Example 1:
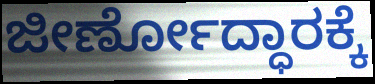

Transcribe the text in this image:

ಜೀರ್ಣೋದ್ಧಾರಕ್ಕೆ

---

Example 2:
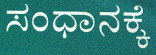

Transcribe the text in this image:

ಸಂಧಾನಕ್ಕೆ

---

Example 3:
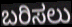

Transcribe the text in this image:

ಬರಿಸಲು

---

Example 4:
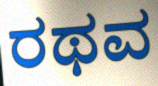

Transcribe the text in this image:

ರಥವ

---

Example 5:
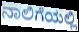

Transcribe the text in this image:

ನಾಲಿಗೆಯಲ್ಲಿ